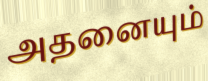
அதனையும்